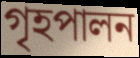
গৃহপালন